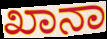
ಖಾನಾ